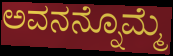
ಅವನನ್ನೊಮ್ಮೆ